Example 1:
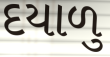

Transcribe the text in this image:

દયાળુ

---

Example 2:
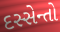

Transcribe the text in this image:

દસ્સેન્તો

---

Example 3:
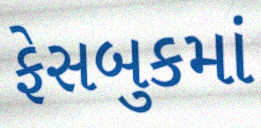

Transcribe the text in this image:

ફેસબુકમાં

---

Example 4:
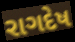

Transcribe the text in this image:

રાગદેષ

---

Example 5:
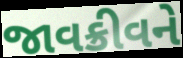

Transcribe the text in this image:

જાવક્રીવને